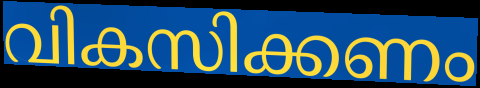
വികസിക്കണം